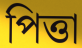
পিত্তা